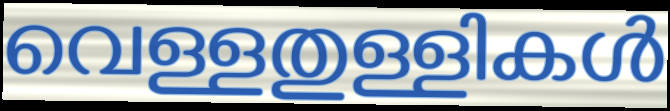
വെള്ളതുള്ളികൾ